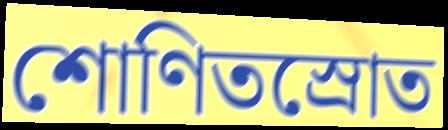
শোণিতস্রোত